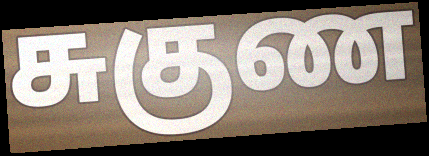
சுகுண